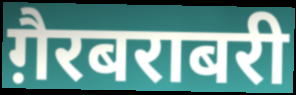
ग़ैरबराबरी